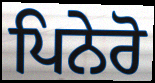
ਪਿਨੇਰੋ